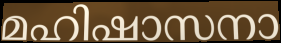
മഹിഷാസനാ